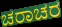
ಚರಾಚರ